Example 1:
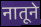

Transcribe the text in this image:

नातूने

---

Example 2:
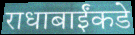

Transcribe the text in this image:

राधाबाईंकडे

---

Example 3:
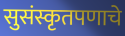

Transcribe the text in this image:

सुसंस्कृतपणाचे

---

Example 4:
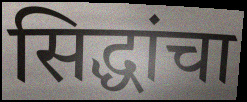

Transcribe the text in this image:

सिद्धांचा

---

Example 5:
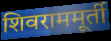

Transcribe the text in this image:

शिवराममूर्ती